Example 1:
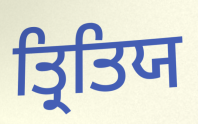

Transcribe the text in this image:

ਤ੍ਰਿਤਿਯ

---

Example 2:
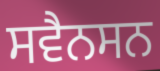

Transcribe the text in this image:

ਸਵੈਨਸਨ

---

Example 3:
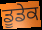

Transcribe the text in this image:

ਡੂਡੇਕ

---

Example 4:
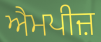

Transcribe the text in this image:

ਐਮਪੀਜ਼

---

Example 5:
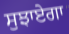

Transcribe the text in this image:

ਸੁਝਾਏਗਾ